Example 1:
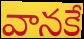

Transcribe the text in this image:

వానకే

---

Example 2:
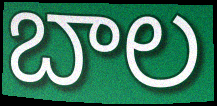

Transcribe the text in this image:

బాల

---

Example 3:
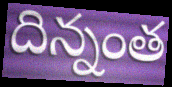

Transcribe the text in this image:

దిన్నంత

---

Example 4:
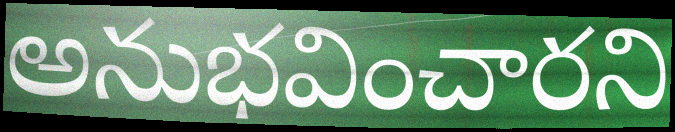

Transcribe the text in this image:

అనుభవించారని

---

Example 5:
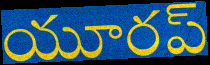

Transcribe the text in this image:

యూరప్